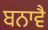
ਬਨਾਵੈ